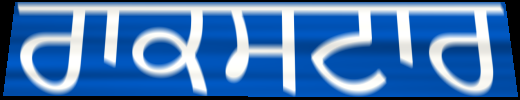
ਰਾਕਸਟਾਰ